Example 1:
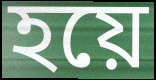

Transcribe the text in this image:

হয়ে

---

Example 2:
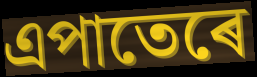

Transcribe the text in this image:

এপাতেৰে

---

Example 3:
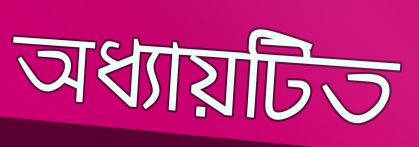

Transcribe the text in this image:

অধ্যায়টিত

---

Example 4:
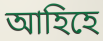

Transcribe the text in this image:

আহিহে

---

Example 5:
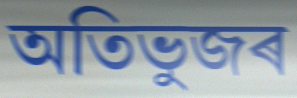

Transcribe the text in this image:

অতিভুজৰ